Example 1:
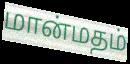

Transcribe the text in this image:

மான்மதம்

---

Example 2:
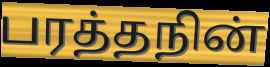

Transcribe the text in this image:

பரத்தநின்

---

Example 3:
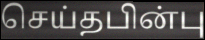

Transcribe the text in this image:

செய்தபின்பு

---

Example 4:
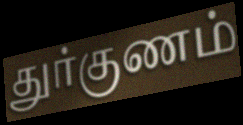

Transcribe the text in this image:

துர்குணம்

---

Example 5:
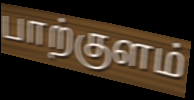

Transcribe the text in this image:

பாற்குளம்